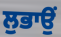
ਲੁਭਾਉਂ